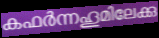
കഫർന്നഹൂമിലേക്കു